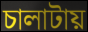
চালাটায়